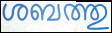
ശബത്തു